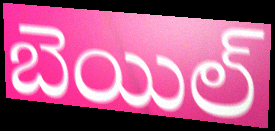
బెయిల్